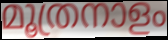
മൂത്രനാളം